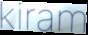
kiram